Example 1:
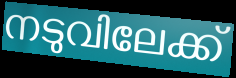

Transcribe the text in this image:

നടുവിലേക്ക്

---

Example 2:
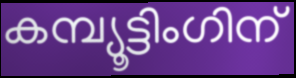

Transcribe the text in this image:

കമ്പ്യൂട്ടിംഗിന്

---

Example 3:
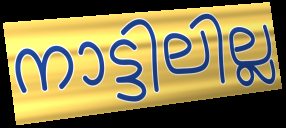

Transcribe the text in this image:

നാട്ടിലില്ല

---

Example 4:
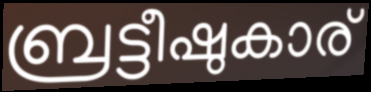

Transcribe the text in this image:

ബ്രട്ടീഷുകാര്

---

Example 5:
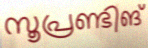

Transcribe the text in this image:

സൂപ്രണ്ടിങ്